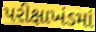
પરીક્ષાખંડમાં